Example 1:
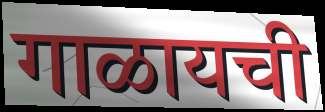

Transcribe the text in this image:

गाळायची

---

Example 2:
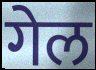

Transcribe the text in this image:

गेल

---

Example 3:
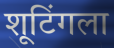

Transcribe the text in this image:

शूटिंगला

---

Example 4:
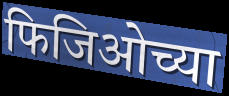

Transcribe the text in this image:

फिजिओच्या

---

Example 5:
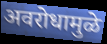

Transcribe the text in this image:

अवरोधामुळे